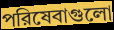
পরিষেবাগুলো